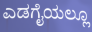
ಎಡಗೈಯಲ್ಲೂ